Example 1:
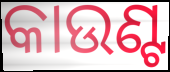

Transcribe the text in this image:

କାଉଣ୍ଟ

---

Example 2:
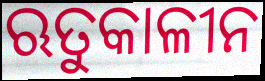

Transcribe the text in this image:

ଋତୁକାଳୀନ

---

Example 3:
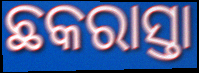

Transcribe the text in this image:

ଛକରାସ୍ତା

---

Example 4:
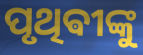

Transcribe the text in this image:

ପୃଥିଵୀଙ୍କୁ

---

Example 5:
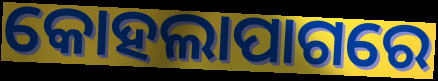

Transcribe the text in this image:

କୋହଲାପାଗରେ